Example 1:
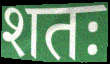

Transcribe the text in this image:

शतः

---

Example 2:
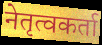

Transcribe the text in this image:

नेतृत्वकर्ता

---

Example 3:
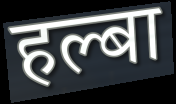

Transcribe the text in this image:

हल्बा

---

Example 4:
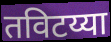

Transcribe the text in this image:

तविटय्या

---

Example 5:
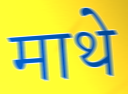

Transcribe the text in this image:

माथे